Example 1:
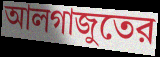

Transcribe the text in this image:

আলগাজুতের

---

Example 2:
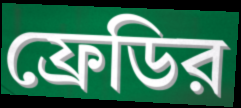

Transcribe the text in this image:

ফ্রেডির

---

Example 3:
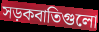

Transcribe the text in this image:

সড়কবাতিগুলো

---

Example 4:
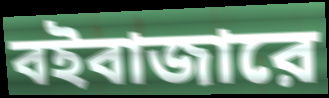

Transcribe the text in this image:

বইবাজারে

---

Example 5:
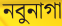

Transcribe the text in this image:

নবুনাগা